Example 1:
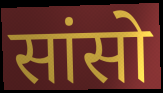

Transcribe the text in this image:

सांसो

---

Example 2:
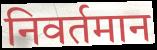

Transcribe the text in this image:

निवर्तमान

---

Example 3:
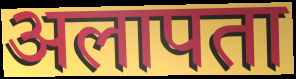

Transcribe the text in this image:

अलापता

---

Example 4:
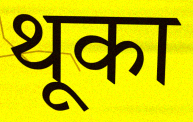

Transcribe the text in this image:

थूका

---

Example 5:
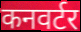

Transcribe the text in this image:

कनवर्टर